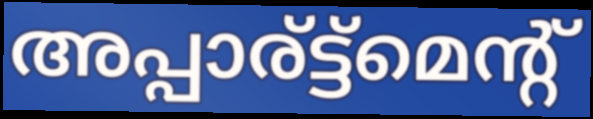
അപ്പാര്ട്ട്മെന്റ്